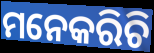
ମନେକରିଚି